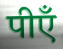
पीएँ